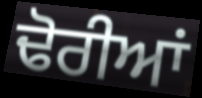
ਢੋਰੀਆਂ